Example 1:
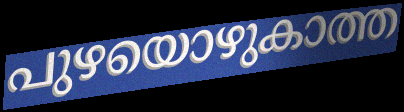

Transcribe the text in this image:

പുഴയൊഴുകാത്ത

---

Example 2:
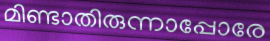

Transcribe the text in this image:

മിണ്ടാതിരുന്നാപ്പോരേ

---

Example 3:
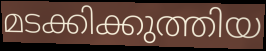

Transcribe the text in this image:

മടക്കിക്കുത്തിയ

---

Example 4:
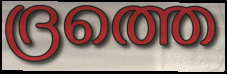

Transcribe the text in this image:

ദ്രത്തെ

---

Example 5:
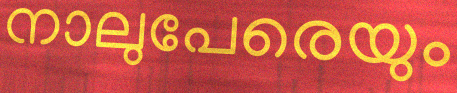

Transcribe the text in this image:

നാലുപേരെയും